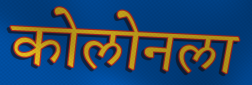
कोलोनला